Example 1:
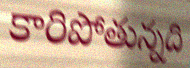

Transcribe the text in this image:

కారిపోతున్నది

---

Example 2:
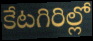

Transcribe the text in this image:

కేటగిరిల్లో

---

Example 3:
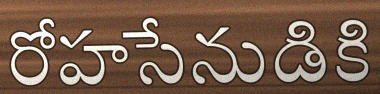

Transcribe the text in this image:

రోహసేనుడికి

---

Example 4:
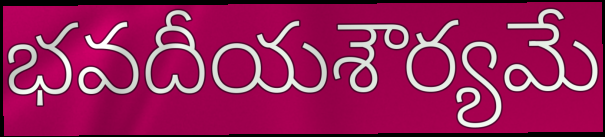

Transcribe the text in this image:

భవదీయశౌర్యమే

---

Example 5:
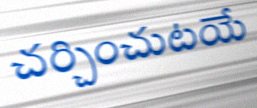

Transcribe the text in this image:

చర్చించుటయే